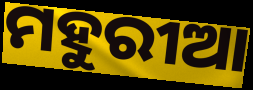
ମହୁରୀଆ